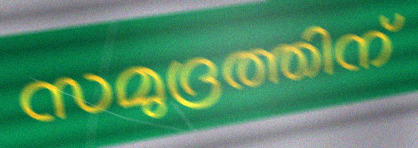
സമുദ്രത്തിന്